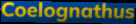
Coelognathus